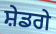
ਸ਼ੇਡਗੇ